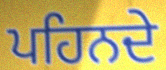
ਪਹਿਨਦੇ